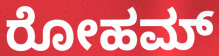
ರೋಹಮ್